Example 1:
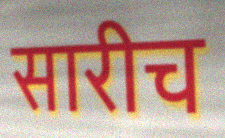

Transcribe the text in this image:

सारीच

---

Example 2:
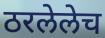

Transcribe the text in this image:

ठरलेलेच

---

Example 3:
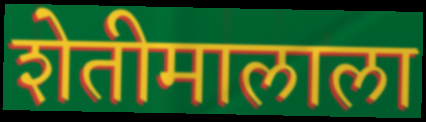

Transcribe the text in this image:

शेतीमालाला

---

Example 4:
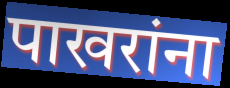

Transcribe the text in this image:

पाखरांना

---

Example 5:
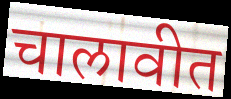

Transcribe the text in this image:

चालावीत